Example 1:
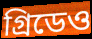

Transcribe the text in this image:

গ্রিডেও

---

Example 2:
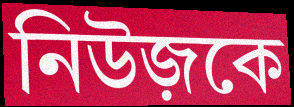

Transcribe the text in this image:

নিউজ়কে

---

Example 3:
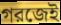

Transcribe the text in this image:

গরজেই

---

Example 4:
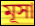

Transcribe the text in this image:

মূসা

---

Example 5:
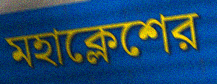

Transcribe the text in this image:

মহাক্লেশের